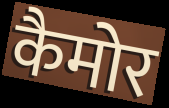
कैमोर